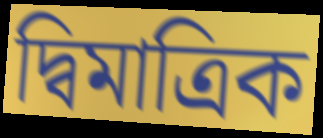
দ্বিমাত্রিক